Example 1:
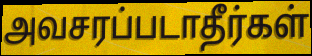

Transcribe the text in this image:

அவசரப்படாதீர்கள்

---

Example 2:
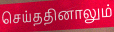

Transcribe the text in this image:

செய்ததினாலும்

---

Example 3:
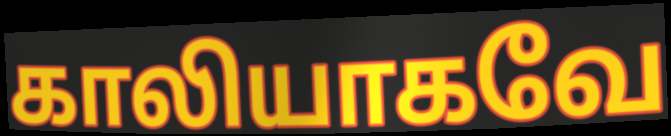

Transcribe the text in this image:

காலியாகவே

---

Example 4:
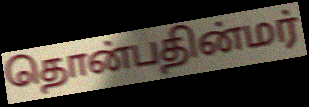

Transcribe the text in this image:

தொன்பதின்மர்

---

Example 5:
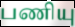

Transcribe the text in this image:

பணியு